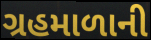
ગ્રહમાળાની